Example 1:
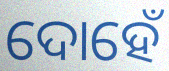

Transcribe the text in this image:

ଦୋହେଁ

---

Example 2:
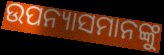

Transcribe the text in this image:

ଉପନ୍ୟାସମାନଙ୍କୁ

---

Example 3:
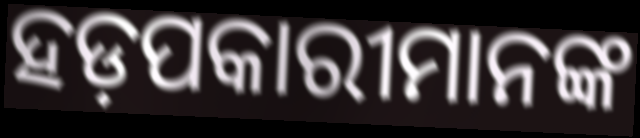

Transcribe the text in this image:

ହଡ଼ପକାରୀମାନଙ୍କ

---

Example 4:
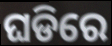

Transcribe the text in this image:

ଘଡିରେ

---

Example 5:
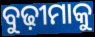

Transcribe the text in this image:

ବୁଢ଼ୀମାକୁ